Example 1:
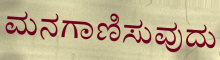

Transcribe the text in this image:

ಮನಗಾಣಿಸುವುದು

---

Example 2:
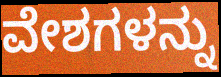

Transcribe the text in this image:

ವೇಶಗಳನ್ನು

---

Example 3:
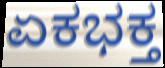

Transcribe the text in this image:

ಏಕಭಕ್ತ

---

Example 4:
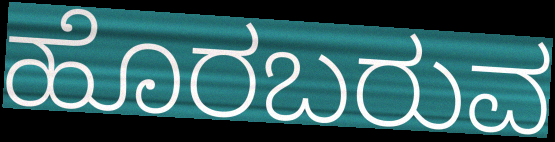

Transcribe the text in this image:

ಹೊರಬರುವ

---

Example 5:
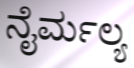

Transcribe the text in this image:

ನೈರ್ಮಲ್ಯ